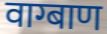
वाग्बाण